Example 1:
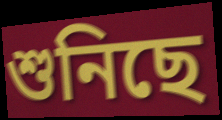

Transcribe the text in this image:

শুনিছে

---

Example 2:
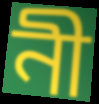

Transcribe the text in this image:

নী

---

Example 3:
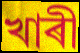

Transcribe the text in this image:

খাৰী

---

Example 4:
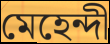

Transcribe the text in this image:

মেহেন্দী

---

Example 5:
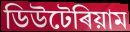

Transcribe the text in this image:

ডিউটেৰিয়াম